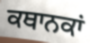
ਕਥਾਨਕਾਂ